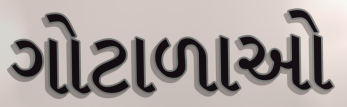
ગોટાળાઓ